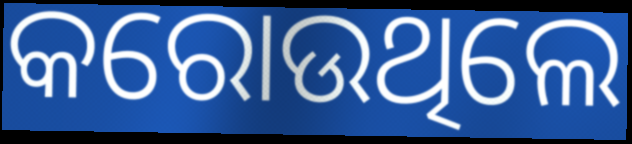
କରୋଉଥିଲେ